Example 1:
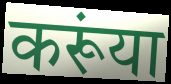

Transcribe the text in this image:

करूंया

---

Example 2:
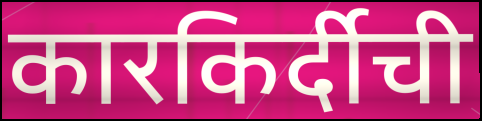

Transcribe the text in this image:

कारकिर्दीची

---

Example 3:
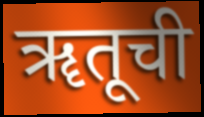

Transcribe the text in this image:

ॠतूची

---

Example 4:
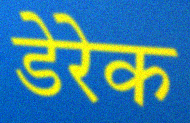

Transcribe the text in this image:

डेरेक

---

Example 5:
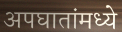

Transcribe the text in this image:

अपघातांमध्ये